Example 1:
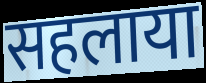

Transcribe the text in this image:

सहलाया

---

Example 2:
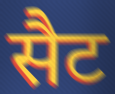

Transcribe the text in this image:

सैट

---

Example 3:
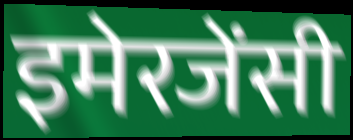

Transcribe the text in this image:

इमेरजेंसी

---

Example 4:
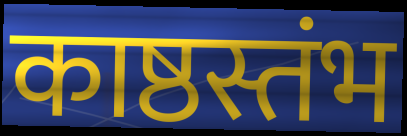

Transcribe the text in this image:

काष्ठस्तंभ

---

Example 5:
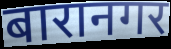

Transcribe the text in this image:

बारानगर